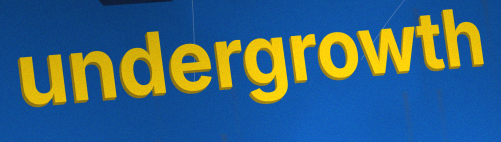
undergrowth